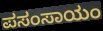
ಪಸಂಸಾಯಂ